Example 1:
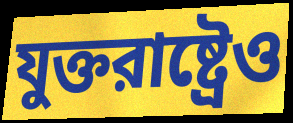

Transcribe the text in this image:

যুক্তরাষ্ট্রেও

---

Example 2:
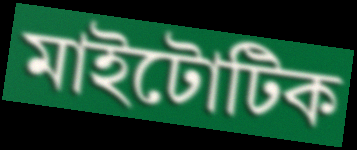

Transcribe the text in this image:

মাইটোটিক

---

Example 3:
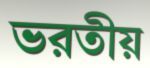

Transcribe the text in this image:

ভরতীয়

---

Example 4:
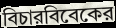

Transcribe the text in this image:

বিচারবিবেকের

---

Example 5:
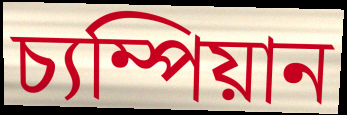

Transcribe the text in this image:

চ্যম্পিয়ান